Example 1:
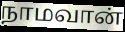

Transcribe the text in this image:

நாமவான்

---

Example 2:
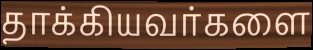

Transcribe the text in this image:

தாக்கியவர்களை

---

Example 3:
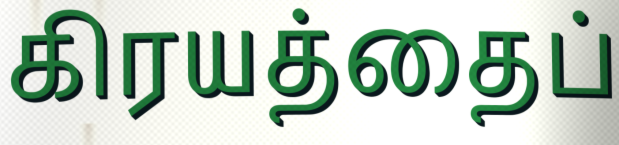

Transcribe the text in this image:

கிரயத்தைப்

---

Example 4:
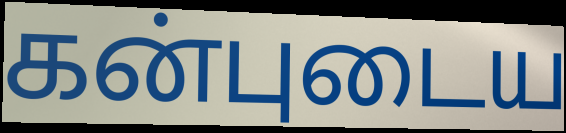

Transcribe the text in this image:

கன்புடைய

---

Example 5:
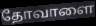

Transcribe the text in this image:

தோவாளை